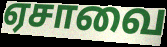
ஏசாவை